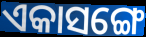
ଏକାସଙ୍ଗେ